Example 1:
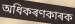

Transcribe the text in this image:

অধিকৰণকাৰক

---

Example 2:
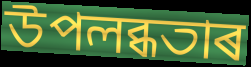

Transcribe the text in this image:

উপলব্ধতাৰ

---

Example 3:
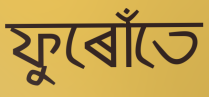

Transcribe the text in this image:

ফুৰোঁতে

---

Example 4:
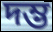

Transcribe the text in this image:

দম্ভ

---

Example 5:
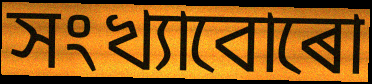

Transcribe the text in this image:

সংখ্যাবোৰো